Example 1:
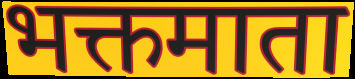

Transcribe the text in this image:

भक्तमाता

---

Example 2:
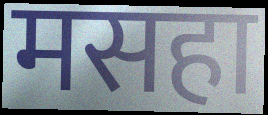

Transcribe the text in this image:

मसहा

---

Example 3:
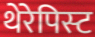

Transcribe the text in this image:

थेरेपिस्‍ट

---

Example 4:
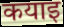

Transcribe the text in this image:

कयाइ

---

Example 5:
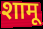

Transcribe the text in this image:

शामू